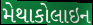
મેથાકોલાઇન